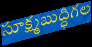
సూక్ష్మబుద్ధిగల